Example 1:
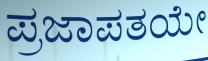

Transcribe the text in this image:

ಪ್ರಜಾಪತಯೇ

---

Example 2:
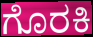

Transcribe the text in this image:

ಗೊರಕಿ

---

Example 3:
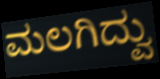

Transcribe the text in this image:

ಮಲಗಿದ್ವು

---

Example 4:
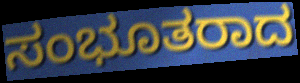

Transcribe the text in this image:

ಸಂಭೂತರಾದ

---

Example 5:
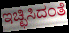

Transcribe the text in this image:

ಇಚ್ಛಿಸಿದಂತೆ